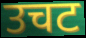
उचट